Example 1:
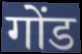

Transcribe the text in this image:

गोंड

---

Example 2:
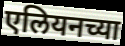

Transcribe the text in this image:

एलियनच्या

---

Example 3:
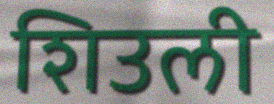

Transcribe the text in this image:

शिउली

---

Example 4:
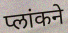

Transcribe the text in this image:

प्लांकने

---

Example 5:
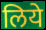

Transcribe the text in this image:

लिये